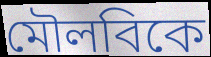
মৌলবিকে